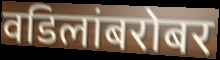
वडिलांबरोबर